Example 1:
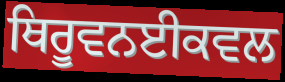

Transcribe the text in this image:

ਥਿਰੂਵਨਈਕਵਲ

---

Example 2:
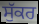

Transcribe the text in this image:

ਸੁੱਕਰ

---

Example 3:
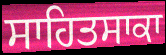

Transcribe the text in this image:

ਸਾਹਿਤਸਾਕਾ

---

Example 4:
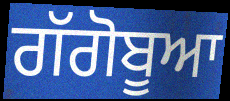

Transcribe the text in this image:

ਗੱਗੋਬੂਆ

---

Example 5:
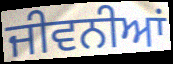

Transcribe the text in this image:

ਜੀਵਨੀਆਂ